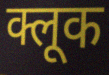
क्लूक